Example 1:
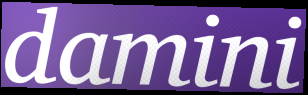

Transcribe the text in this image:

damini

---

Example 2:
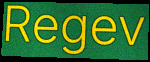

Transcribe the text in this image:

Regev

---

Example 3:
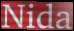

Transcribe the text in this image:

Nida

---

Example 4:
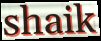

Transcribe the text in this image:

shaik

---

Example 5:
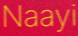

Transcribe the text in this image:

Naayi